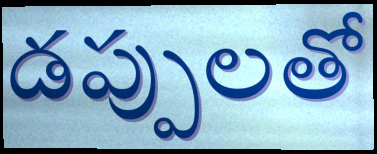
డప్పులతో